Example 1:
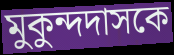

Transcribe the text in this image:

মুকুন্দদাসকে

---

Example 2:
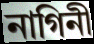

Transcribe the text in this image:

নাগিনী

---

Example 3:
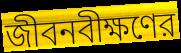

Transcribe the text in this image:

জীবনবীক্ষণের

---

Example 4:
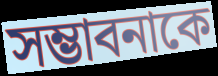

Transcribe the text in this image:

সম্ভাবনাকে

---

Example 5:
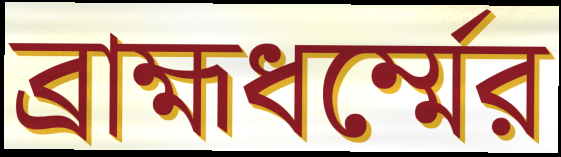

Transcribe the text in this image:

ব্রাহ্মধর্ম্মের